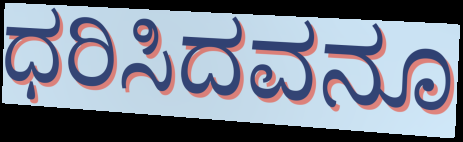
ಧರಿಸಿದವನೂ